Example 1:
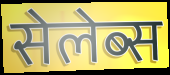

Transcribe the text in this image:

सेलेब्स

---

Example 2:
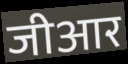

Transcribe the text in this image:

जीआर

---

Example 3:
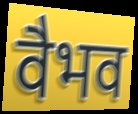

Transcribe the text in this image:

वैभव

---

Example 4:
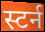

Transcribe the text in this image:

स्टर्न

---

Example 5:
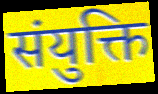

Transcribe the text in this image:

संयुक्ति